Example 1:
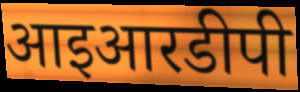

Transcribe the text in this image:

आइआरडीपी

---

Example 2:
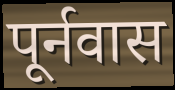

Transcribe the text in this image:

पूर्नवास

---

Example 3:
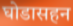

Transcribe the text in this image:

घोडासहन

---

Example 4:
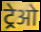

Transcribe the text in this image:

ट्रेओ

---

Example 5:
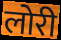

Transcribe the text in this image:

लोरी